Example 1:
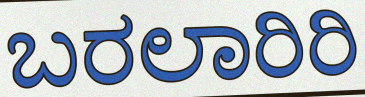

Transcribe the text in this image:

ಬರಲಾರಿರಿ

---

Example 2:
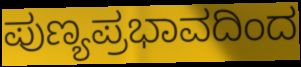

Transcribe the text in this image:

ಪುಣ್ಯಪ್ರಭಾವದಿಂದ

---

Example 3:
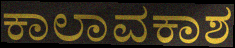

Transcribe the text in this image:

ಕಾಲಾವಕಾಶ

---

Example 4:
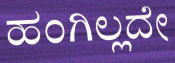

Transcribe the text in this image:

ಹಂಗಿಲ್ಲದೇ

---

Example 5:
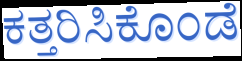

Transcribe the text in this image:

ಕತ್ತರಿಸಿಕೊಂಡೆ